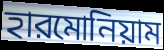
হারমোনিয়াম